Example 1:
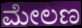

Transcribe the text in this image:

ಮೇಲಣ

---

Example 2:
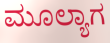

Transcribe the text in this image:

ಮೂಲ್ಯಾಗ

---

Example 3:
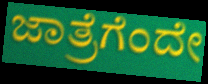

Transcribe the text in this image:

ಜಾತ್ರೆಗೆಂದೇ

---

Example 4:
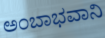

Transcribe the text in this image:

ಅಂಬಾಭವಾನಿ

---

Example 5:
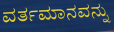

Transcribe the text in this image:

ವರ್ತಮಾನವನ್ನು